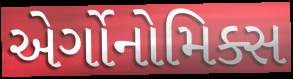
એર્ગોનોમિક્સ